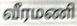
வீரமணி